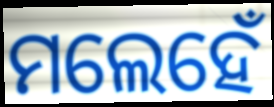
ମଲେହେଁ